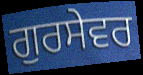
ਗੁਰਸੇਵਰ